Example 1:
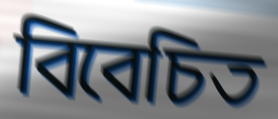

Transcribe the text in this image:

বিবেচিত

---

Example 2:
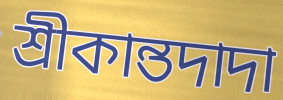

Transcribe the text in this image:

শ্রীকান্তদাদা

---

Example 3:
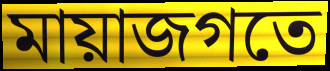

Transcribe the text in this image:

মায়াজগতে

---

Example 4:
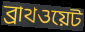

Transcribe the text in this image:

ব্রাথওয়েট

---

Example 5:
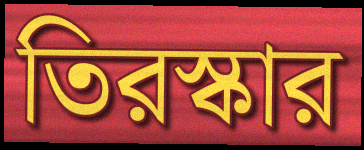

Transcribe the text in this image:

তিরস্কার